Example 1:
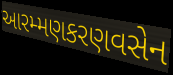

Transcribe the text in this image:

આરમ્મણકરણવસેન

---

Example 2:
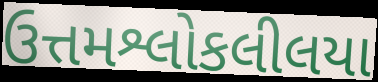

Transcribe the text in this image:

ઉત્તમશ્લોકલીલયા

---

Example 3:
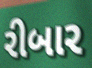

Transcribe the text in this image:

રીબાર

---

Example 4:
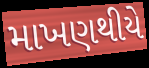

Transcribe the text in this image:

માખણથીયે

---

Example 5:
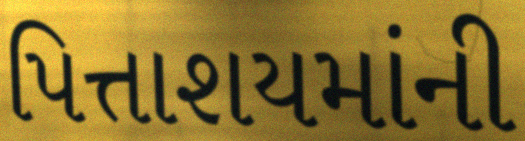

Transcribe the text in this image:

પિત્તાશયમાંની